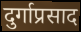
दुर्गाप्रसाद